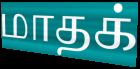
மாதக்